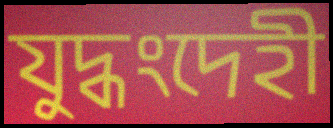
যুদ্ধংদেহী